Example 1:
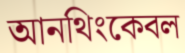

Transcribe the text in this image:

আনথিংকেবল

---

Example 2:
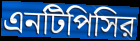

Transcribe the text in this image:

এনটিপিসির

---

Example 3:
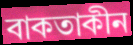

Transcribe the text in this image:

বাকতাকীন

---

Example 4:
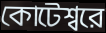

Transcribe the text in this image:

কোটেশ্বরে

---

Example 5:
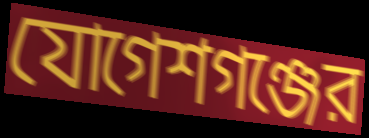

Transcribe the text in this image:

যোগেশগঞ্জের